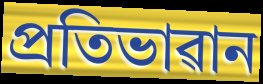
প্ৰতিভাৱান